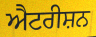
ਐਟਰੀਸ਼ਨ